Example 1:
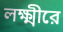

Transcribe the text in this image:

লক্ষ্মীরে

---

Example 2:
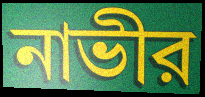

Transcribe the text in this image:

নাভীর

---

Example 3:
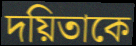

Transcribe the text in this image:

দয়িতাকে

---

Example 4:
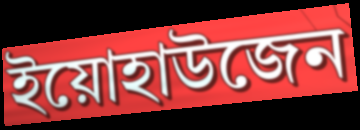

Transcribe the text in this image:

ইয়োহাউজেন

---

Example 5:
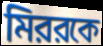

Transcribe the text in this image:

মিররকে